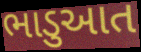
ભાડુઆત